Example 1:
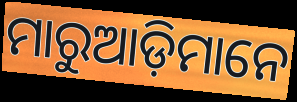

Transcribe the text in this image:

ମାରୁଆଡ଼ିମାନେ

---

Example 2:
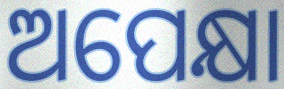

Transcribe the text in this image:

ଅପେକ୍ଷା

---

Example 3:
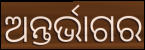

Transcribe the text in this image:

ଅନ୍ତର୍ଭାଗର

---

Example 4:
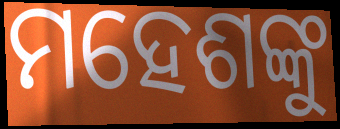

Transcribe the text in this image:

ମହେଶଙ୍କୁ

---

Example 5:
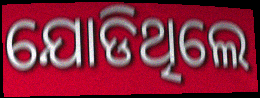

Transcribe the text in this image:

ଯୋଡିଥିଲେ